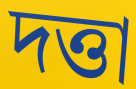
দত্তা